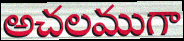
అచలముగా